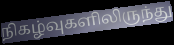
நிகழ்வுகளிலிருந்து